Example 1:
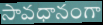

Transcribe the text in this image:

సావధానంగా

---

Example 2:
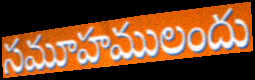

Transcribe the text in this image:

సమూహములందు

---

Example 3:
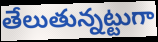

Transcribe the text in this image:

తేలుతున్నట్టుగా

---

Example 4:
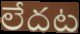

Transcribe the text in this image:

లేదట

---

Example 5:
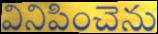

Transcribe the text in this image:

వినిపించెను